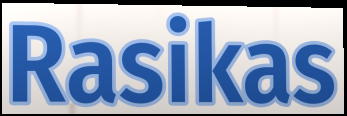
Rasikas